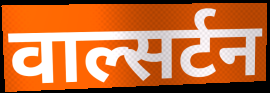
वाल्सर्टन